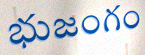
భుజంగం